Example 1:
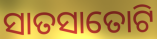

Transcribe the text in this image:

ସାତସାତୋଟି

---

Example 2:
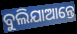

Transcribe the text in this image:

ବୁଲିଯାଆନ୍ତେ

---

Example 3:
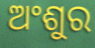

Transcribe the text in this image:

ଅଂଶୁର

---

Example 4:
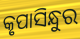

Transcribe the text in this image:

କୃପାସିନ୍ଧୁର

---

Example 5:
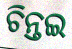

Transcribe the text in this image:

ଚିନ୍ତଇ